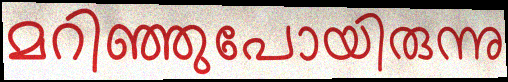
മറിഞ്ഞുപോയിരുന്നു